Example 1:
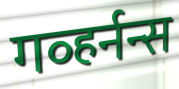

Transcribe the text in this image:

गव्हर्नन्स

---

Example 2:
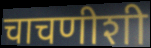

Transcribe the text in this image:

चाचणीशी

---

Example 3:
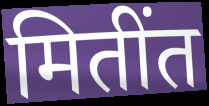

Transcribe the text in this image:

मितींत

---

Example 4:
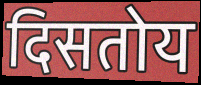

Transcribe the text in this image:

दिसतोय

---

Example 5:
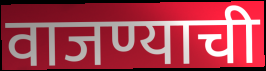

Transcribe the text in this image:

वाजण्याची